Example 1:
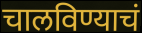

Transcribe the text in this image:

चालविण्याचं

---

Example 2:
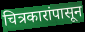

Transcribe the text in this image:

चित्रकारांपासून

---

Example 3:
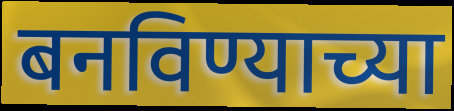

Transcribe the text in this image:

बनविण्याच्या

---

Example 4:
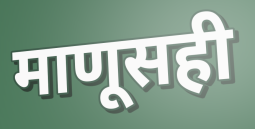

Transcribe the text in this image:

माणूसही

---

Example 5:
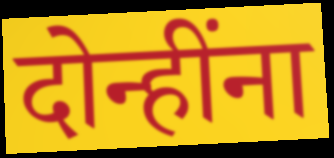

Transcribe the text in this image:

दोन्हींना